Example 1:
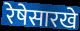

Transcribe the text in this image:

रेषेसारखे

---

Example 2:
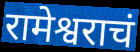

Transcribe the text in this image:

रामेश्वराचं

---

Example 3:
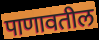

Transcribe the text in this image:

पाणावतील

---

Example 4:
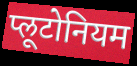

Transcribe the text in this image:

प्लूटोनियम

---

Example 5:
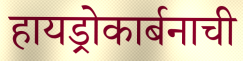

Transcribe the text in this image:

हायड्रोकार्बनाची